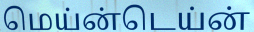
மெய்ன்டெய்ன்